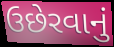
ઉછેરવાનું